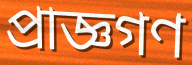
প্রাজ্ঞগণ